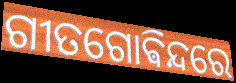
ଗୀତଗୋଵିନ୍ଦରେ